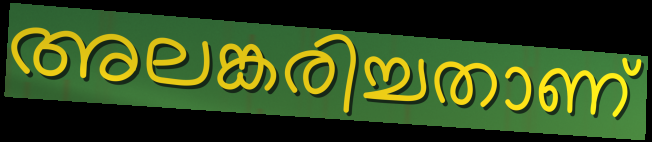
അലങ്കരിച്ചതാണ്